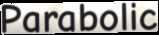
Parabolic